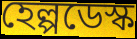
হেল্পডেস্ক